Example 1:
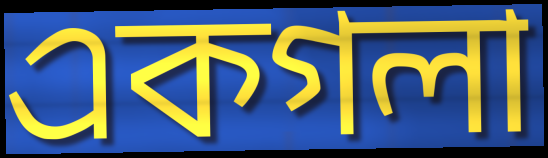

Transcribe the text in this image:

একগলা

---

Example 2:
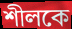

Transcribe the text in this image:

শীলকে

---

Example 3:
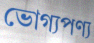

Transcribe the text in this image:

ভোগ্যপণ্য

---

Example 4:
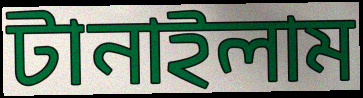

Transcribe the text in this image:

টানাইলাম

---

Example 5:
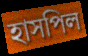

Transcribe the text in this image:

হাসপিল